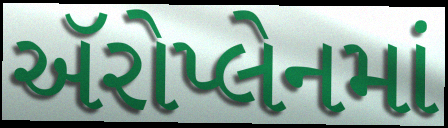
ઍરોપ્લેનમાં